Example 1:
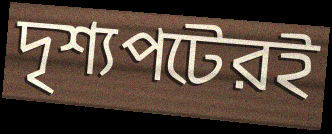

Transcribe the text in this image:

দৃশ্যপটেরই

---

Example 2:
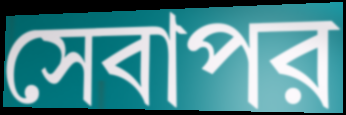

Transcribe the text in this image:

সেবাপর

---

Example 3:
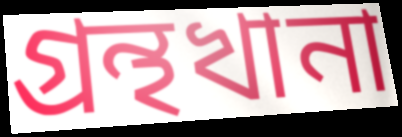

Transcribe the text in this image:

গ্রন্থখানা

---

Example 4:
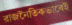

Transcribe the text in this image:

রাজনৈতিকভাবেই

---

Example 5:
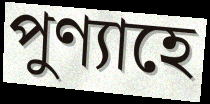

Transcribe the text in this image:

পুণ্যাহে